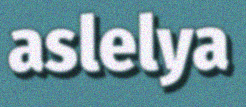
aslelya